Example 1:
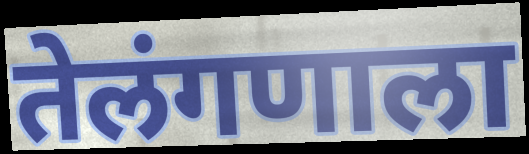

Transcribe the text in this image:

तेलंगणाला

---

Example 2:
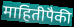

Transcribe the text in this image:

माहितीपैकी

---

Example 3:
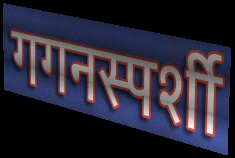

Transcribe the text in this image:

गगनस्पर्शी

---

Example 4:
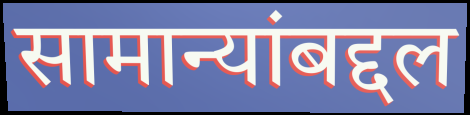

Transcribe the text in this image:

सामान्यांबद्दल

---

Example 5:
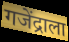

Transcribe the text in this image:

गजेंद्राला